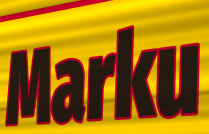
Marku